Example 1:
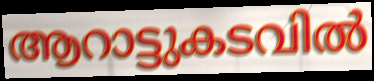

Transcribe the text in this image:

ആറാട്ടുകടവിൽ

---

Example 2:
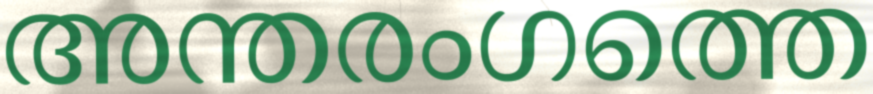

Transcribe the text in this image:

അന്തരംഗത്തെ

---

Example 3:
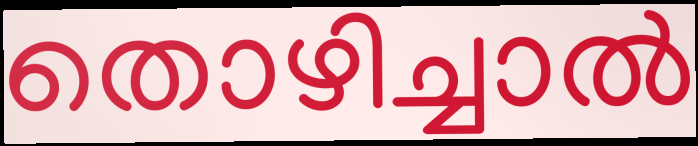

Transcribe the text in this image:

തൊഴിച്ചാൽ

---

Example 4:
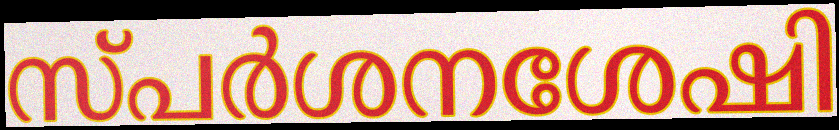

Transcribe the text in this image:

സ്പർശനശേഷി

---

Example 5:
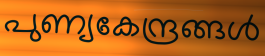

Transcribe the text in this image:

പുണ്യകേന്ദ്രങ്ങൾ